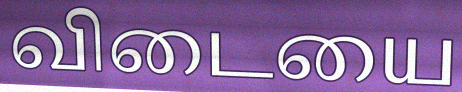
விடையை